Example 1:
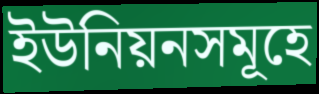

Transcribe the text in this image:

ইউনিয়নসমূহে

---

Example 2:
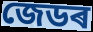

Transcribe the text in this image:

জেডৰ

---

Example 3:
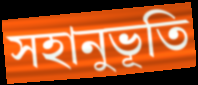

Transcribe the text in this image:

সহানুভূতি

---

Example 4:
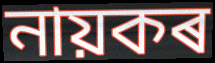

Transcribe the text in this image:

নায়কৰ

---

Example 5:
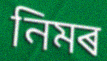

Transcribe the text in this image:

নিমৰ